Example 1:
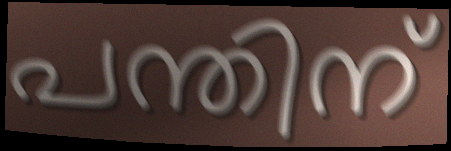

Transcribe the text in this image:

പന്തിന്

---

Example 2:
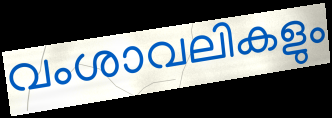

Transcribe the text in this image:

വംശാവലികളും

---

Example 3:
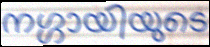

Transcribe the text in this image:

നഗ്ഗായിയുടെ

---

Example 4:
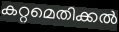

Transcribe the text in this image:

കറ്റമെതിക്കൽ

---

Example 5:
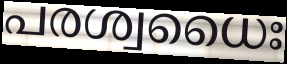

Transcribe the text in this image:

പരശ്വധൈഃ